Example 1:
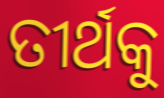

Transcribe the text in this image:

ତୀର୍ଥକୁ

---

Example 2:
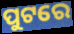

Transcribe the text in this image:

ପୁଟରେ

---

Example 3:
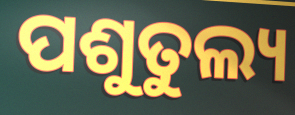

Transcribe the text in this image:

ପଶୁତୁଲ୍ୟ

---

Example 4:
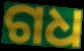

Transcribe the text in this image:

ଗଧ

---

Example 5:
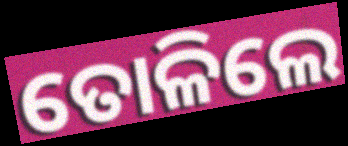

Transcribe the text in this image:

ତୋଳିଲେ